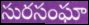
సురసంఘా